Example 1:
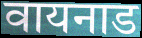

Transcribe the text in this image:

वायनाड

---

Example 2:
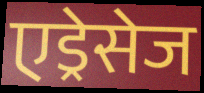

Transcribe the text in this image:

एड्रेसेज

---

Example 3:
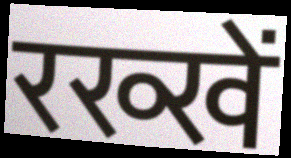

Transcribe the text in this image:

रख्खें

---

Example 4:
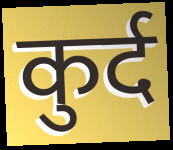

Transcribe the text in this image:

कुर्द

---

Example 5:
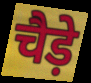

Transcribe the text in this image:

चैड़े